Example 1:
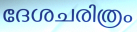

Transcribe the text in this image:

ദേശചരിത്രം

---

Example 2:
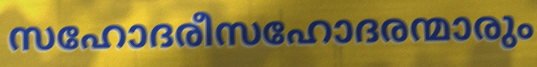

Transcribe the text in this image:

സഹോദരീസഹോദരന്മാരും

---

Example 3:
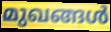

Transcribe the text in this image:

മുഖങ്ങൾ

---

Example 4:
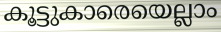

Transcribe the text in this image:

കൂട്ടുകാരെയെല്ലാം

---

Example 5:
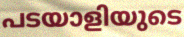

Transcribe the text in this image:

പടയാളിയുടെ